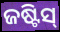
ଜଷ୍ଟିସ୍